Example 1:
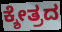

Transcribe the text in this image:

ಕ್ಶೇತ್ರದ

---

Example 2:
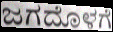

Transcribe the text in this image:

ಜಗದೊಳಗೆ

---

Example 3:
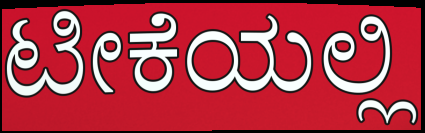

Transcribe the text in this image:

ಟೀಕೆಯಲ್ಲಿ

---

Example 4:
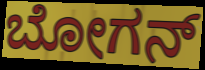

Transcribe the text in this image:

ಬೋಗನ್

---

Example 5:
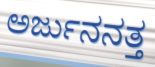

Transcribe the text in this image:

ಅರ್ಜುನನತ್ತ